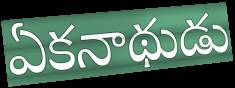
ఏకనాథుడు